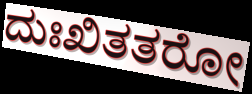
ದುಃಖಿತತರೋ